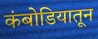
कंबोडियातून